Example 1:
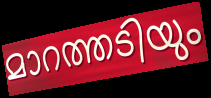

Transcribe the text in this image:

മാറത്തടിയും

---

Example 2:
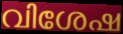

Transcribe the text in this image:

വിശേഷ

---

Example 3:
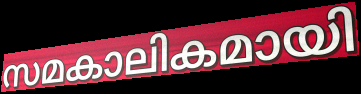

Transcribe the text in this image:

സമകാലികമായി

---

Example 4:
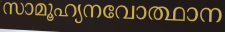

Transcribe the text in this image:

സാമൂഹ്യനവോത്ഥാന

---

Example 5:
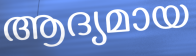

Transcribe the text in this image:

ആദ്യമായ